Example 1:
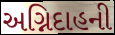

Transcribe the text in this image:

અગ્નિદાહની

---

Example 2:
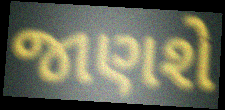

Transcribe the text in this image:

જાણશે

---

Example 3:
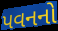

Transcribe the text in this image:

પવનનો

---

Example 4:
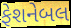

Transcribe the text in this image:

ફેશનેબલ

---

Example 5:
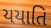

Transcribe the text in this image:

યયાતિ